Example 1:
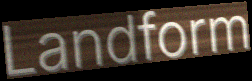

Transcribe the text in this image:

Landform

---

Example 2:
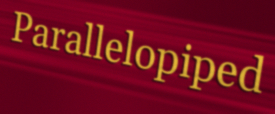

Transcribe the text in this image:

Parallelopiped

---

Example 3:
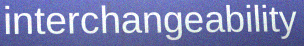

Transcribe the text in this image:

interchangeability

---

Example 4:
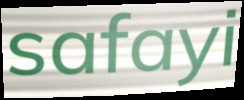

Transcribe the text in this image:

safayi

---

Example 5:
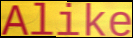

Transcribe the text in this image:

Alike